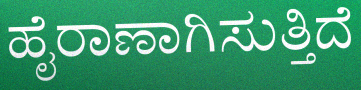
ಹೈರಾಣಾಗಿಸುತ್ತಿದೆ